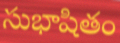
సుభాషితం